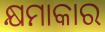
କ୍ଷମାକାର